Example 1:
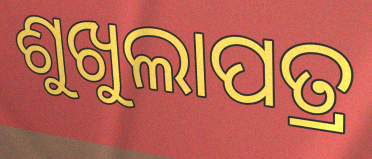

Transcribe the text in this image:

ଶୁଖୁଲାପତ୍ର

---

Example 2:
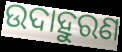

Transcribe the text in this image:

ଉଦାହୁରଣ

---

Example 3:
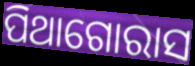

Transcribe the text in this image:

ପିଥାଗୋରାସ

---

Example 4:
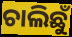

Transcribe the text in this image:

ଚାଲିଛୁଁ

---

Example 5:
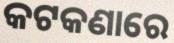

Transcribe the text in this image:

କଟକଣାରେ